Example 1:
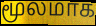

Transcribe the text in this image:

மூலமாக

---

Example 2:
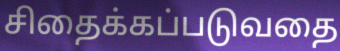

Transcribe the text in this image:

சிதைக்கப்படுவதை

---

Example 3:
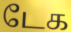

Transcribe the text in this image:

டேக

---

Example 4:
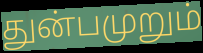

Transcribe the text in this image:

துன்பமுறும்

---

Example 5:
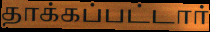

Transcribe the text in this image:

தாக்கப்பட்டார்